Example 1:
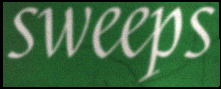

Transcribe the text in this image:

sweeps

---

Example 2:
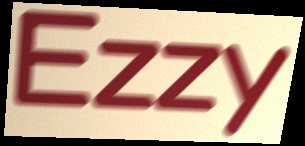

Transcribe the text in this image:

Ezzy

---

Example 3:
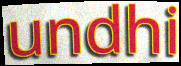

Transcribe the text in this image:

undhi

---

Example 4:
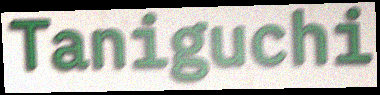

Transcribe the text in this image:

Taniguchi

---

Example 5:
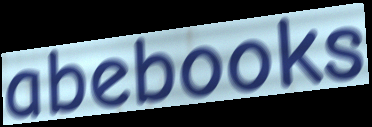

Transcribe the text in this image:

abebooks